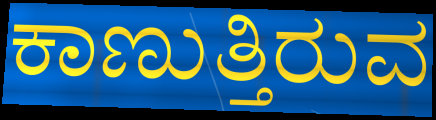
ಕಾಣುತ್ತಿರುವ